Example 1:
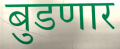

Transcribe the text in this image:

बुडणार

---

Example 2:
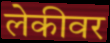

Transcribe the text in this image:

लेकीवर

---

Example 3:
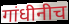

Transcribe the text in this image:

गांधीनीच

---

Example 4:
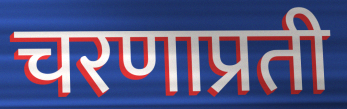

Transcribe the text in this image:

चरणाप्रती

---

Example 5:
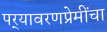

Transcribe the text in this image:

पर्यावरणप्रेमींचा